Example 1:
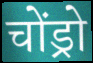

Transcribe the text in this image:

चोंड्रो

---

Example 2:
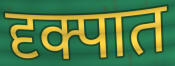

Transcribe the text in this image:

दृक्पात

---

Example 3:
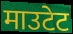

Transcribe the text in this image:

माउटेट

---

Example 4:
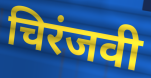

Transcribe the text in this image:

चिरंजवी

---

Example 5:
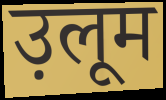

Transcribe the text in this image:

उ़लूम